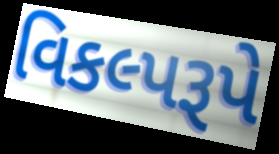
વિકલ્પરૂપે